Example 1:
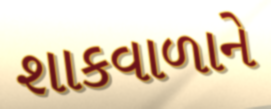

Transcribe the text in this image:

શાકવાળાને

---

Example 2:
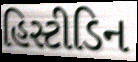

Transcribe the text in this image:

હિસ્ટીડિન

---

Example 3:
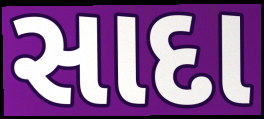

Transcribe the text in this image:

સાદા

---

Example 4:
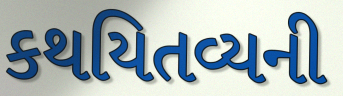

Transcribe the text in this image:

કથયિતવ્યની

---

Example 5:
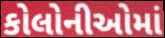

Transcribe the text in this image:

કોલોનીઓમાં